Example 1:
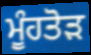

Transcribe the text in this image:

ਮੂੰਹਤੋੜ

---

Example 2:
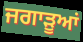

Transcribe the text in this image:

ਜਗਾੜੂਆਂ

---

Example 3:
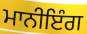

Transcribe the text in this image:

ਮਾਨੀਇੰਗ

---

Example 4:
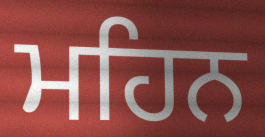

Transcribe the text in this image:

ਮਹਿਨ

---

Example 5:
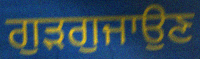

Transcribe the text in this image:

ਗੁੜਗੁਜਾਉਣ